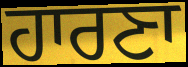
ਹਾਰਣਾ